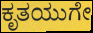
ಕೃತಯುಗೇ